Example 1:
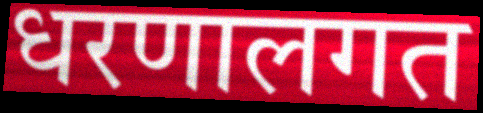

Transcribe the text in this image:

धरणालगत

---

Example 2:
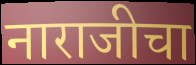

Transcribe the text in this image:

नाराजीचा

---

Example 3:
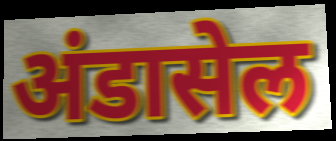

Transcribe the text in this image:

अंडासेल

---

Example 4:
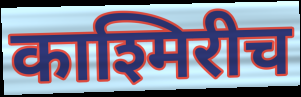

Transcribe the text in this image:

काश्मिरीच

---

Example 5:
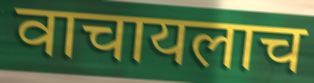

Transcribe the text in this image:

वाचायलाच